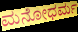
ಮನೋಧರ್ಮ